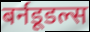
बर्नडूडल्स